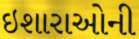
ઇશારાઓની